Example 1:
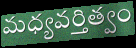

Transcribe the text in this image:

మధ్యవర్తిత్వం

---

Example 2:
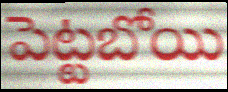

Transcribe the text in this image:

పెట్టబోయి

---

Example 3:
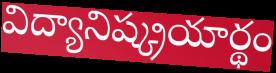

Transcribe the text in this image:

విద్యానిష్క్రయార్థం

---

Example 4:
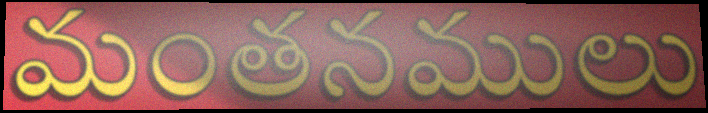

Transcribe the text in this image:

మంతనములు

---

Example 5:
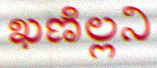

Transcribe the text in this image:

ఖణిల్లని